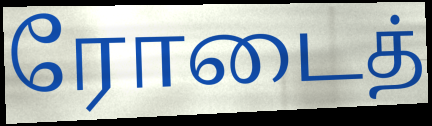
ரோடைத்